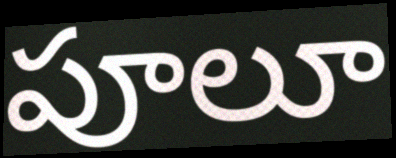
పూలూ